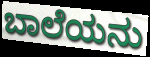
ಬಾಲೆಯನು